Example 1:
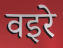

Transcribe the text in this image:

वइरे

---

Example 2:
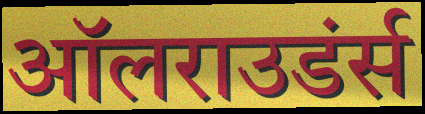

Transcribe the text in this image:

ऑलराउडंर्स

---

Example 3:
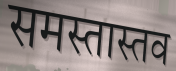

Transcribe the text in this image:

समस्तास्तव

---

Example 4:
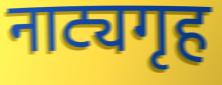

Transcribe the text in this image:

नाट्यगृह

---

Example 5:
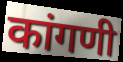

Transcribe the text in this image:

कांगणी